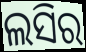
ଲସିର